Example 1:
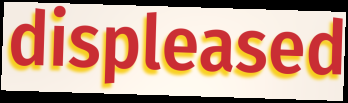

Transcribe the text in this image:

displeased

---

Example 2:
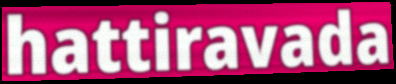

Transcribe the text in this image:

hattiravada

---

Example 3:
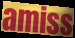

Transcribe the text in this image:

amiss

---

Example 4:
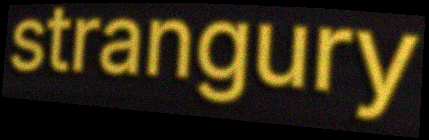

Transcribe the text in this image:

strangury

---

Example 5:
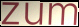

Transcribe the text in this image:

zum